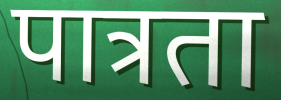
पात्रता